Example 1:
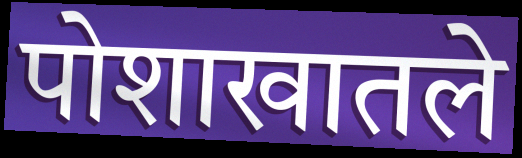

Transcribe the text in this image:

पोशाखातले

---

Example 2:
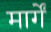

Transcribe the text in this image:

मार्गें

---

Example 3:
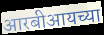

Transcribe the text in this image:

आरबीआयच्या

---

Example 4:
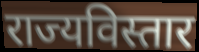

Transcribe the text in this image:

राज्यविस्तार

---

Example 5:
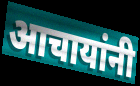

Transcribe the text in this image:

आचायांनी